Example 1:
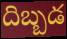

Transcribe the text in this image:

దిబ్బడ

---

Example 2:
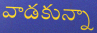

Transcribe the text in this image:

వాడకున్నా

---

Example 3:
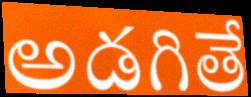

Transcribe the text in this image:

అడగితే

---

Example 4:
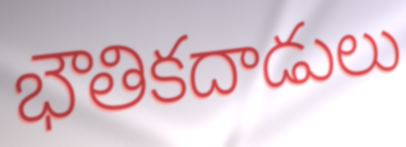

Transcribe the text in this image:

భౌతికదాడులు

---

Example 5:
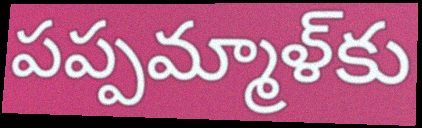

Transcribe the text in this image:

పప్పమ్మాళ్‌కు